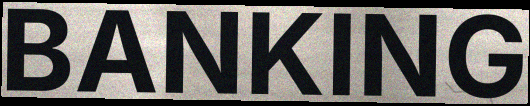
BANKING